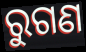
ରୁଗଣ